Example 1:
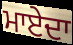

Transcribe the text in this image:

ਮਾਏਦਾ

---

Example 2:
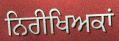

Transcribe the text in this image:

ਨਿਰੀਖਿਅਕਾਂ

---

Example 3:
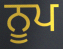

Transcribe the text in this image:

ਨੂਪ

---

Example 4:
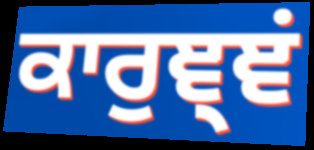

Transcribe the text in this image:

ਕਾਰੁਞ੍ਞਂ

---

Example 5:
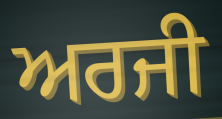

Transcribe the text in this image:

ਅਰਜੀ